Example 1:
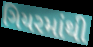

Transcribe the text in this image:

ગિયરમાંથી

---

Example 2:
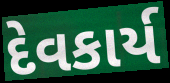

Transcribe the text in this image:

દેવકાર્ય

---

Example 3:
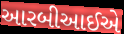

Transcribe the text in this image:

આરબીઆઈએ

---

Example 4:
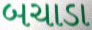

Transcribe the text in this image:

બચાડા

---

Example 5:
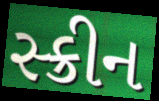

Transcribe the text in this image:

સ્ક્રીન